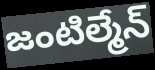
జంటిల్మేన్